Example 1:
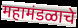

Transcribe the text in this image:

महामंडळाचे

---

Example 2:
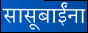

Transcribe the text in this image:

सासूबाईंना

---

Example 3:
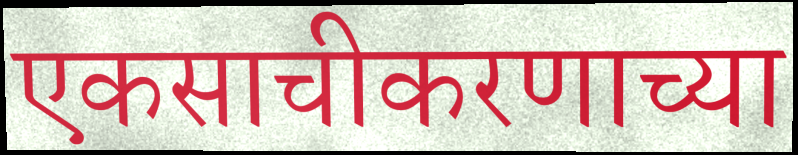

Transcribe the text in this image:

एकसाचीकरणाच्या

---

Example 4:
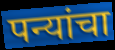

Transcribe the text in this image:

पन्यांचा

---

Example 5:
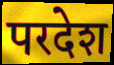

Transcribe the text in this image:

परदेश